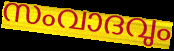
സംവാദവും